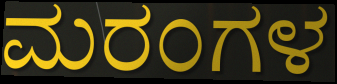
ಮರಂಗಳ